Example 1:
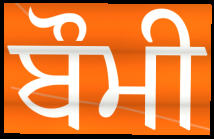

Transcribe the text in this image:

ਬੌਮੀ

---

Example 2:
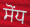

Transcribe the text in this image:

ਸੋਂਧ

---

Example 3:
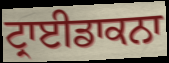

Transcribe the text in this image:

ਟ੍ਰਾਈਡਾਕਨਾ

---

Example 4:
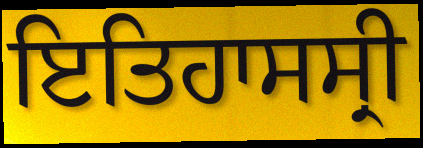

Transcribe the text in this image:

ਇਤਿਹਾਸਸ੍ਰੀ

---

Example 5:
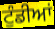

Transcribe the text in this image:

ਟੁੰਡੀਆਂ